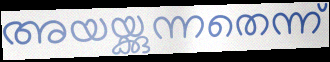
അയയ്ക്കുന്നതെന്ന്